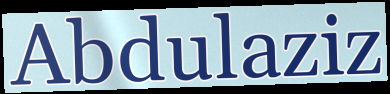
Abdulaziz